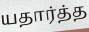
யதார்த்த